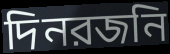
দিনরজনি